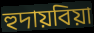
হুদায়বিয়া